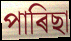
পাৰিছা